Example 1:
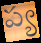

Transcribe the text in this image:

ప్య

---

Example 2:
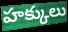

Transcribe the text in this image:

హక్కులు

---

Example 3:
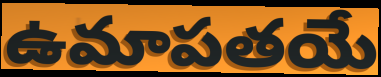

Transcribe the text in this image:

ఉమాపతయే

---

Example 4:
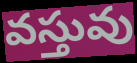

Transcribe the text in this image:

వస్తువు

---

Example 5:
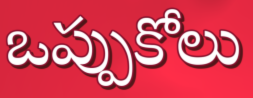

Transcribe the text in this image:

ఒప్పుకోలు